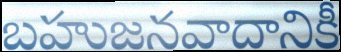
బహుజనవాదానికీ